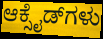
ಆಕ್ಸೈಡ್‌ಗಳು